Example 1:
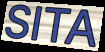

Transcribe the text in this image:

SITA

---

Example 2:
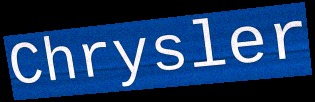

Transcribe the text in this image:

Chrysler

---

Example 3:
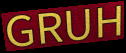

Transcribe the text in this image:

GRUH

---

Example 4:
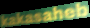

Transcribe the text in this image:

kakasaheb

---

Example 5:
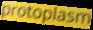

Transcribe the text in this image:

protoplasm